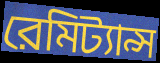
রেমিট্যান্স